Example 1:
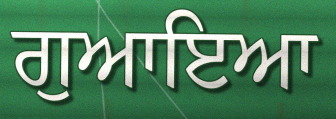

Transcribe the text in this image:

ਗੁਆਇਆ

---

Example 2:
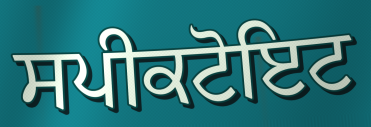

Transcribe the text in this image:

ਸਪੀਕਟੋਇਟ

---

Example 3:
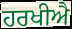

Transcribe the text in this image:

ਹਰਖੀਐ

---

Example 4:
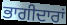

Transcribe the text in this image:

ਭਾਗੀਦਾਰਾਂ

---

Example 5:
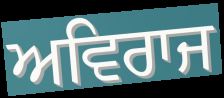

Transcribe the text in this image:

ਅਵਿਰਾਜ